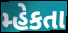
મ્હેકતા